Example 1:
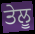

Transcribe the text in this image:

ਤੇਲੂ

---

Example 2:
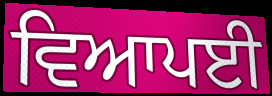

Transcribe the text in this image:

ਵਿਆਪਈ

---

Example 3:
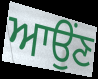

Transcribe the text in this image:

ਆਉਂਣ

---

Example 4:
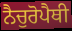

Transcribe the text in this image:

ਨੈਚੁਰੋਪੈਥੀ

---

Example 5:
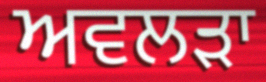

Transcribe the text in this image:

ਅਵਲੜਾ